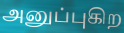
அனுப்புகிற